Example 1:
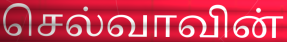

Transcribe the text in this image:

செல்வாவின்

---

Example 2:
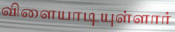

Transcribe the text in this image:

விளையாடியுள்ளார்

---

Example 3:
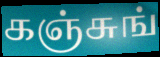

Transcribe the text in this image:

கஞ்சுங்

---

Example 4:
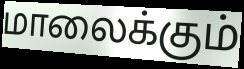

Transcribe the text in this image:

மாலைக்கும்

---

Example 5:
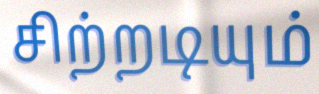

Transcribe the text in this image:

சிற்றடியும்